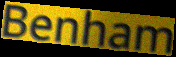
Benham